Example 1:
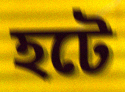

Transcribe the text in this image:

হটে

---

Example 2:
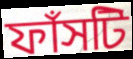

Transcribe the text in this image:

ফাঁসটি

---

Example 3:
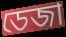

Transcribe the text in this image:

ডেজা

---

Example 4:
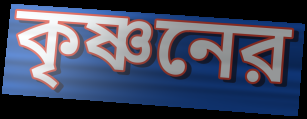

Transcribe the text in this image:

কৃষ্ণনের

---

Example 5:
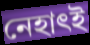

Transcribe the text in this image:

নেহাৎই